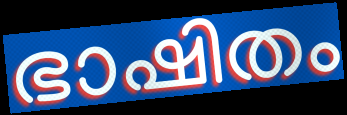
ഭാഷിതം